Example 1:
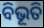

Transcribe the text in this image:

ବିଭୂତି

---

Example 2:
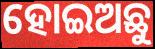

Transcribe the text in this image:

ହୋଇଅଛୁ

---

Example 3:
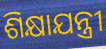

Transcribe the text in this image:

ଶିକ୍ଷାଯନ୍ତ୍ରୀ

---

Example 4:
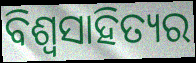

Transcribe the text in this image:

ବିଶ୍ଵସାହିତ୍ୟର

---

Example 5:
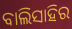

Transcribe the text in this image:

ବାଲିସାହିର